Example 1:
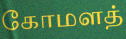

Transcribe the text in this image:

கோமளத்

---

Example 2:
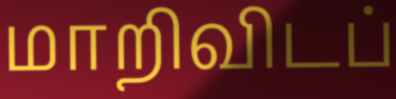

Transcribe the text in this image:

மாறிவிடப்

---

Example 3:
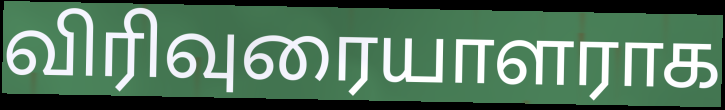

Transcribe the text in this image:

விரிவுரையாளராக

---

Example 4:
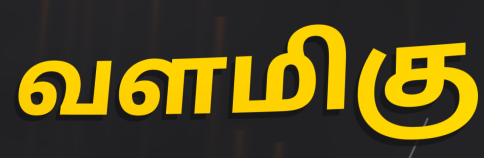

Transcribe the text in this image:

வளமிகு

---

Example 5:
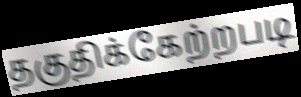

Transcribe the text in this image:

தகுதிக்கேற்றபடி